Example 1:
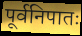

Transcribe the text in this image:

पूर्वनिपातः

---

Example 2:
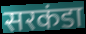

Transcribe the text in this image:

सरकंडा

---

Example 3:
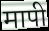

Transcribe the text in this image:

मापी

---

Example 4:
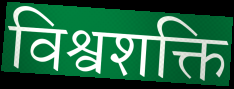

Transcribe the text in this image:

विश्वशक्ति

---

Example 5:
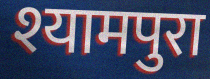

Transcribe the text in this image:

श्यामपुरा